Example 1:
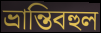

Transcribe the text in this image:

ভ্রান্তিবহুল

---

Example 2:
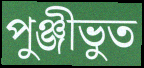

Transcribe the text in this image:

পুঞ্জীভুত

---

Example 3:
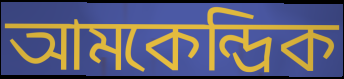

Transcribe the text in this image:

আমকেন্দ্রিক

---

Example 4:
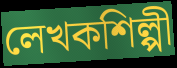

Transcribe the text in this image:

লেখকশিল্পী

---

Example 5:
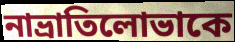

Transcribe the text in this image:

নাভ্রাতিলোভাকে